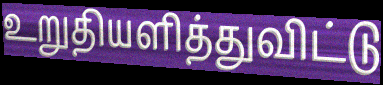
உறுதியளித்துவிட்டு